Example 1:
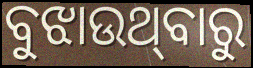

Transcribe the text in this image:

ବୁଝାଉଥ୍‌ବାରୁ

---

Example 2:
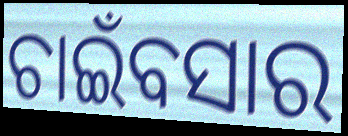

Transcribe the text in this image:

ଚାଇଁବସାର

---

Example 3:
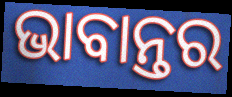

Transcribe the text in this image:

ଭାବାନ୍ତର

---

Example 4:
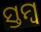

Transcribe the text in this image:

ସ୍ତମ୍ଵ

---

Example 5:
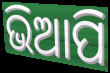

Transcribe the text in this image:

ଭିଆପି